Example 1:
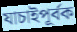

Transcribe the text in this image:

যাচাইপূর্বক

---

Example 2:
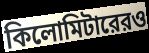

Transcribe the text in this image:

কিলোমিটারেরও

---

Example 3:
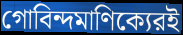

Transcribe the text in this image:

গোবিন্দমাণিক্যেরই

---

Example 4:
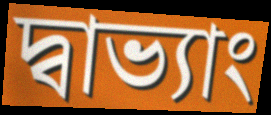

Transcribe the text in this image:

দ্বাভ্যাং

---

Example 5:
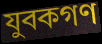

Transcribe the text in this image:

যুবকগণ